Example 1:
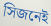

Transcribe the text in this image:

সিজনেই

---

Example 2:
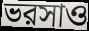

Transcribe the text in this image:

ভরসাও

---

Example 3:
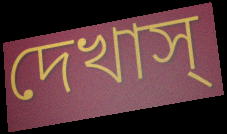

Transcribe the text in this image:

দেখাস্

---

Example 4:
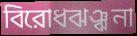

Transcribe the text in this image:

বিরোধঝঞ্ঝনা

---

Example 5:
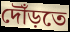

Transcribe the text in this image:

দৌঁড়তে